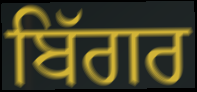
ਬਿੱਗਰ